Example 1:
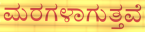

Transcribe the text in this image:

ಮರಗಳಾಗುತ್ತವೆ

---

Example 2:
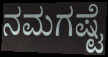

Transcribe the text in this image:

ನಮಗಷ್ಟೆ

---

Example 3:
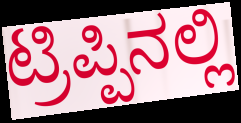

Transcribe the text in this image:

ಟ್ರಿಪ್ಪಿನಲ್ಲಿ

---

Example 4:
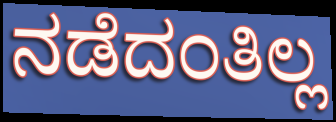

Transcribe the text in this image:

ನಡೆದಂತಿಲ್ಲ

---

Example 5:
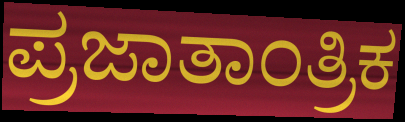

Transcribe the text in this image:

ಪ್ರಜಾತಾಂತ್ರಿಕ